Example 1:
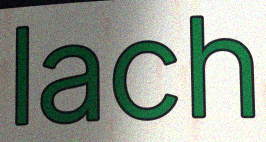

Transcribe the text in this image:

lach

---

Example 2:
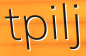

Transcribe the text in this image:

tpilj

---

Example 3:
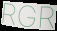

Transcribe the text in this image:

RGR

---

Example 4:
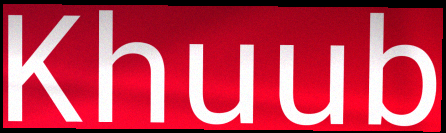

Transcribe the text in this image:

Khuub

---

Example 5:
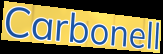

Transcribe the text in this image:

Carbonell